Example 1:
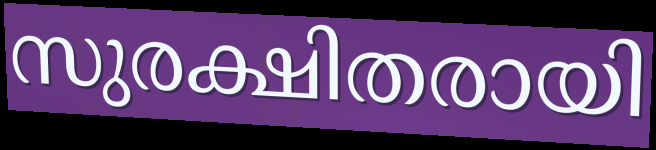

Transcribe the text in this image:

സുരക്ഷിതരായി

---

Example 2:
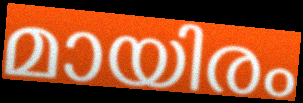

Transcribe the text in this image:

മായിരം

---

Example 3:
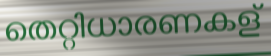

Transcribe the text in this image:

തെറ്റിധാരണകള്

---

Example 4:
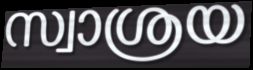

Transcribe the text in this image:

സ്വാശ്രയ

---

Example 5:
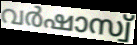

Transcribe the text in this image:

വർഷാസ്വ്